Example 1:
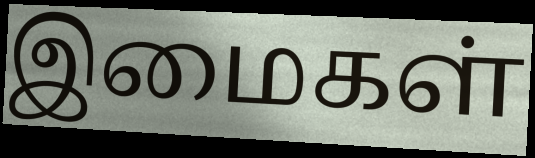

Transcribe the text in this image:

இமைகள்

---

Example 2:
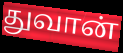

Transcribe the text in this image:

துவான்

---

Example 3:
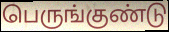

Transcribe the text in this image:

பெருங்குண்டு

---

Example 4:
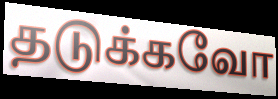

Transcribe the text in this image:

தடுக்கவோ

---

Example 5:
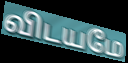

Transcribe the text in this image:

விடயமே